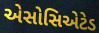
એસોસિએટેડ